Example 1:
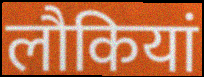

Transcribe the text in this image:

लौकियां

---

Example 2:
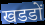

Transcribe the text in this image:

खडडों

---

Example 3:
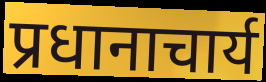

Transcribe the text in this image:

प्रधानाचार्य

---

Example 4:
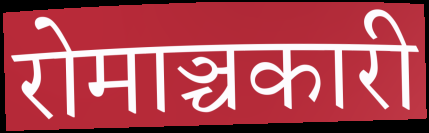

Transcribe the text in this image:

रोमाञ्चकारी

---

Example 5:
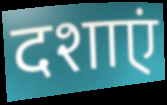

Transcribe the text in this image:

दशाएं